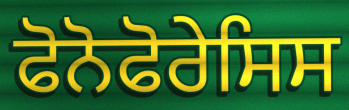
ਫੋਨੋਫੋਰੇਸਿਸ